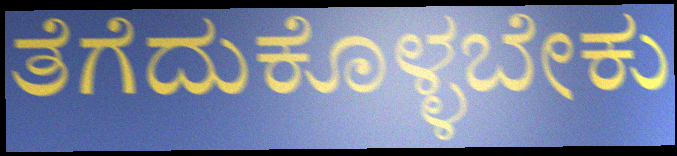
ತೆಗೆದುಕೊಳ್ಳಬೇಕು